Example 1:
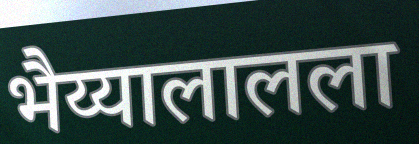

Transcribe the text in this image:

भैय्यालालला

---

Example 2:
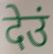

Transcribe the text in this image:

देउं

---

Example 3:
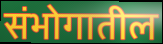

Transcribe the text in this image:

संभोगातील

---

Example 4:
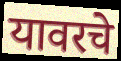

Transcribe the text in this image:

यावरचे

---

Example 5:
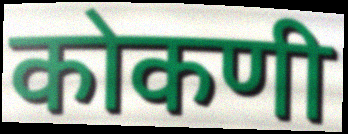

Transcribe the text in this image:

कोकणी